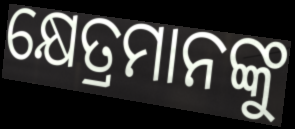
କ୍ଷେତ୍ରମାନଙ୍କୁ